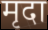
मृदा